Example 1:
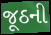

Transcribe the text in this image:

જૂઠની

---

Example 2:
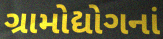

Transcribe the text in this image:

ગ્રામોદ્યોગનાં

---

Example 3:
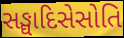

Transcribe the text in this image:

સઙ્ઘાદિસેસોતિ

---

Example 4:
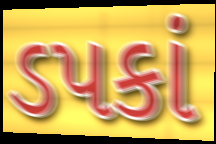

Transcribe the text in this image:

ડપકાં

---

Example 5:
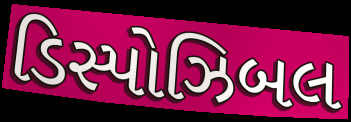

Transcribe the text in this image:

ડિસ્પોઝિબલ